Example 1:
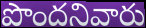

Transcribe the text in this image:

పొందనివారు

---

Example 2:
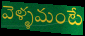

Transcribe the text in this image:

వెళ్ళమంటే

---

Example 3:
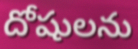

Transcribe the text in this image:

దోషులను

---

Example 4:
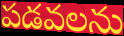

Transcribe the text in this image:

పడవలను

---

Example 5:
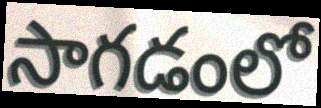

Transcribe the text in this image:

సాగడంలో